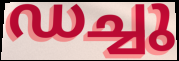
ഡച്ചു